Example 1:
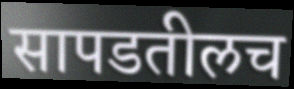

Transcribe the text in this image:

सापडतीलच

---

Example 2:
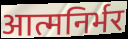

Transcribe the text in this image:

आत्मनिर्भर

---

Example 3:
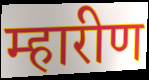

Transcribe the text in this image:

म्हारीण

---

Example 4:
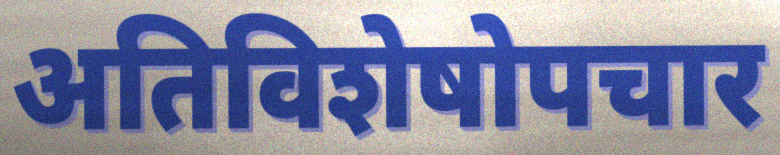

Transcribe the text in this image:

अतिविशेषोपचार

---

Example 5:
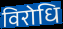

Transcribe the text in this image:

विरोधि